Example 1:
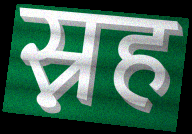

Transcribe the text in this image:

स्नह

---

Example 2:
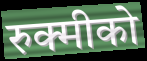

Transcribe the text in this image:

रुक्मीको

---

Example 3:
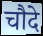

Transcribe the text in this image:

चौदे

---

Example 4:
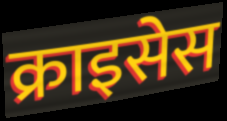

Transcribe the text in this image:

क्राइसेस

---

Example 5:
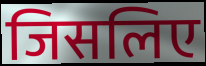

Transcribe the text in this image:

जिसलिए